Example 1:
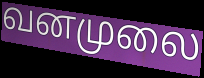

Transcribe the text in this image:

வனமுலை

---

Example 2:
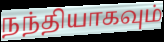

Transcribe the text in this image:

நந்தியாகவும்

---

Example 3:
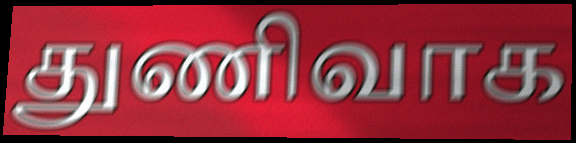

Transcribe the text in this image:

துணிவாக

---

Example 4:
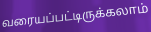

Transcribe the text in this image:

வரையப்பட்டிருக்கலாம்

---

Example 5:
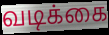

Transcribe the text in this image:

வடிக்கை